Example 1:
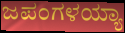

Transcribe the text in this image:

ಜಪಂಗಳಯ್ಯಾ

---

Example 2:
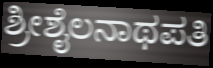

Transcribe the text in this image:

ಶ್ರೀಶೈಲನಾಥಪತಿ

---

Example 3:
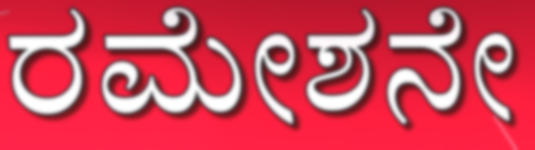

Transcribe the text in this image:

ರಮೇಶನೇ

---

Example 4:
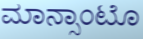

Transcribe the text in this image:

ಮಾನ್ಸಾಂಟೊ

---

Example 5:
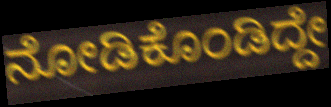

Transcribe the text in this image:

ನೋಡಿಕೊಂಡಿದ್ದೇ